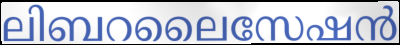
ലിബറലൈസേഷൻ